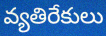
వ్యతిరేకులు